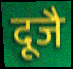
दूजै